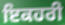
ਇਕਹਰੀ